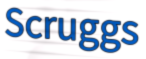
Scruggs